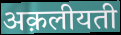
अक़लीयती